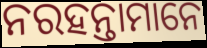
ନରହନ୍ତାମାନେ